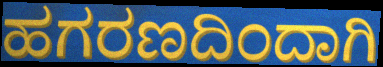
ಹಗರಣದಿಂದಾಗಿ